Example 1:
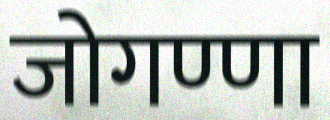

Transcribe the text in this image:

जोगण्णा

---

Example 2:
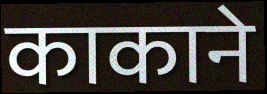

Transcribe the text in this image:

काकाने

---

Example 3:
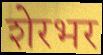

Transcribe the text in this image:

शेरभर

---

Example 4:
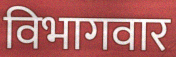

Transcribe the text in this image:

विभागवार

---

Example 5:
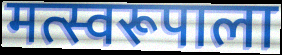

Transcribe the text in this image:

मत्स्वरूपाला